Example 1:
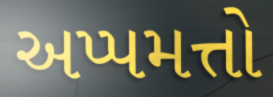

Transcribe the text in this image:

અપ્પમત્તો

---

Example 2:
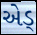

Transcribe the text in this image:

એડ્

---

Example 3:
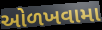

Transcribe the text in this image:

ઓળખવામા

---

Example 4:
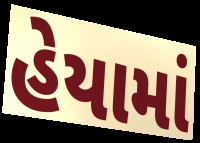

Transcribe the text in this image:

હેયામાં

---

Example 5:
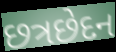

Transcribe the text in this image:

છત્રછેદન